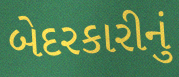
બેદરકારીનું